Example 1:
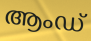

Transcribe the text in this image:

ആംഡ്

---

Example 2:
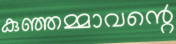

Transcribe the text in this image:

കുഞ്ഞമ്മാവന്റെ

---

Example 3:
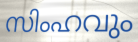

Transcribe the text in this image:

സിംഹവും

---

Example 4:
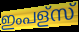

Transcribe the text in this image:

ഇംപള്സ്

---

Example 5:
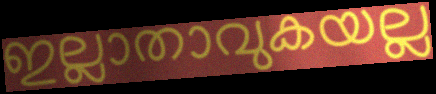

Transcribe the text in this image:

ഇല്ലാതാവുകയല്ല